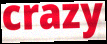
crazy